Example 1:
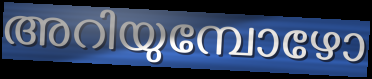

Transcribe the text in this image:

അറിയുമ്പോഴോ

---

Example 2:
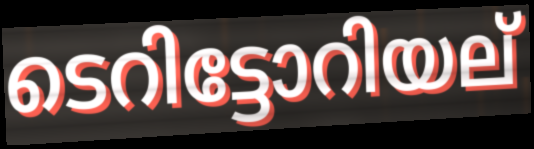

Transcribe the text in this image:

ടെറിട്ടോറിയല്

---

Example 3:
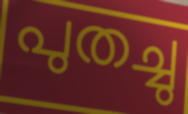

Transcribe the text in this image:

പുതച്ചു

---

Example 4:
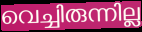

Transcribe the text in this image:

വെച്ചിരുന്നില്ല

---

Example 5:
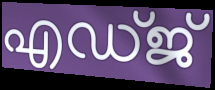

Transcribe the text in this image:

എഡ്ജ്